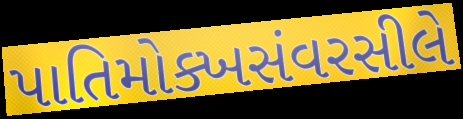
પાતિમોક્ખસંવરસીલે